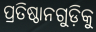
ପ୍ରତିଷ୍ଠାନଗୁଡ଼ିକୁ